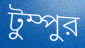
টুম্পুর